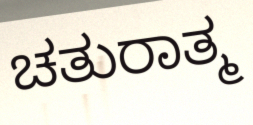
ಚತುರಾತ್ಮ